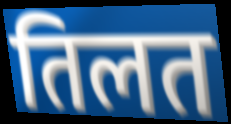
तिलत